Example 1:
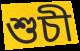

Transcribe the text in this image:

শুচী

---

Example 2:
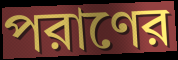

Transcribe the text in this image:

পরাণের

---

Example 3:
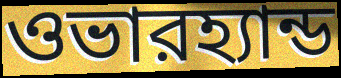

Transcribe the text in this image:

ওভারহ্যান্ড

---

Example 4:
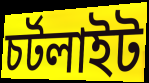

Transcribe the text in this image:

চর্টলাইট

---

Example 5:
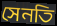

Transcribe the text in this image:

সেনতি